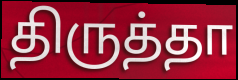
திருத்தா